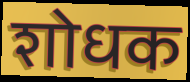
शोधक